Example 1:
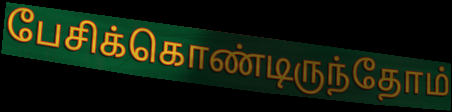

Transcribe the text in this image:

பேசிக்கொண்டிருந்தோம்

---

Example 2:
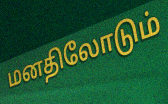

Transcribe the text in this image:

மனதிலோடும்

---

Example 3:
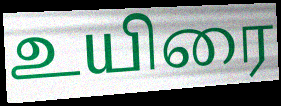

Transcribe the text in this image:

உயிரை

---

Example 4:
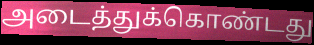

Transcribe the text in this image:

அடைத்துக்கொண்டது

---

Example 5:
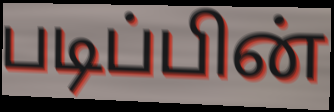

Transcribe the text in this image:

படிப்பின்